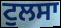
ਟੁਲਸਾ